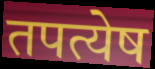
तपत्येष